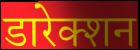
डारेक्शन